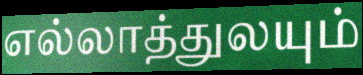
எல்லாத்துலயும்